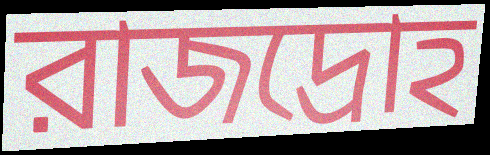
রাজদ্রোহ